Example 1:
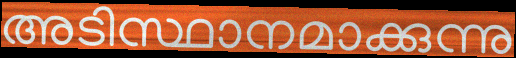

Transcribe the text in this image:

അടിസ്ഥാനമാക്കുന്നു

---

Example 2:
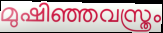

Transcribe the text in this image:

മുഷിഞ്ഞവസ്ത്രം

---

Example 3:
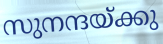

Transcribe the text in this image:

സുനന്ദയ്ക്കു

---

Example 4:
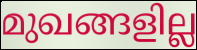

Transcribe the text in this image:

മുഖങ്ങളില്ല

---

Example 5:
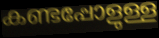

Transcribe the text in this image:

കണ്ടപ്പോളുള്ള